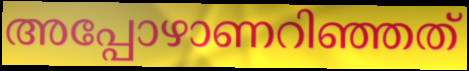
അപ്പോഴാണറിഞ്ഞത്